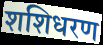
शशिधरण